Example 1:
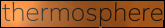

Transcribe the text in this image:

thermosphere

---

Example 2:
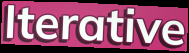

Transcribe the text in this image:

Iterative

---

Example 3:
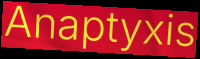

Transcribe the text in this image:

Anaptyxis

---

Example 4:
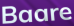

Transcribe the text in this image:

Baare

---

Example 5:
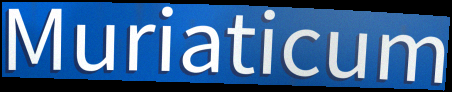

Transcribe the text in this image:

Muriaticum